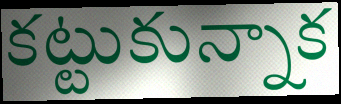
కట్టుకున్నాక